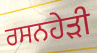
ਰਸਨਹੇੜੀ